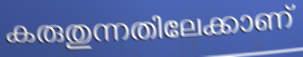
കരുതുന്നതിലേക്കാണ്